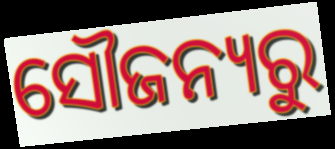
ସୌଜନ୍ୟରୁ